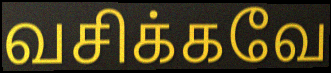
வசிக்கவே